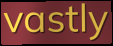
vastly